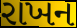
રાખન